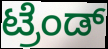
ಟ್ರೆಂಡ್